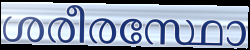
ശരീരസ്ഥോ